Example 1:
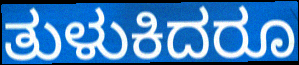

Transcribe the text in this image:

ತುಳುಕಿದರೂ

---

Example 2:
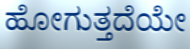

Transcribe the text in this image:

ಹೋಗುತ್ತದೆಯೇ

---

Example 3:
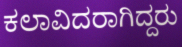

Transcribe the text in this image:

ಕಲಾವಿದರಾಗಿದ್ದರು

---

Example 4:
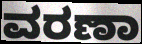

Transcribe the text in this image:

ವರಣಾ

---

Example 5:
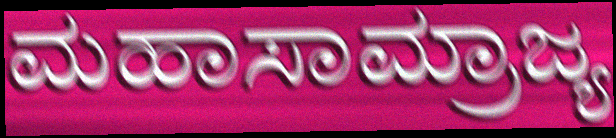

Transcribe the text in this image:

ಮಹಾಸಾಮ್ರಾಜ್ಯ